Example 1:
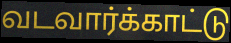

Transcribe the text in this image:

வடவார்க்காட்டு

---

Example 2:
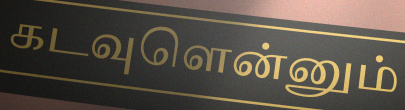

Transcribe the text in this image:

கடவுளென்னும்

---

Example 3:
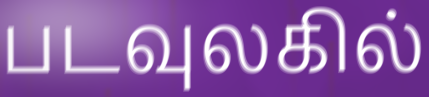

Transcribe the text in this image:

படவுலகில்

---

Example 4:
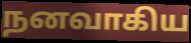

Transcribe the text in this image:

நனவாகிய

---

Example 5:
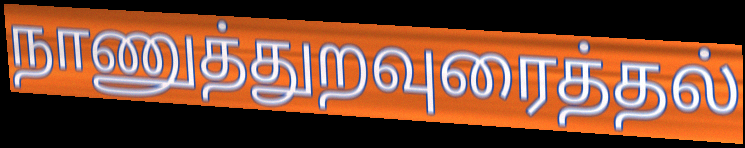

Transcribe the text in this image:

நாணுத்துறவுரைத்தல்